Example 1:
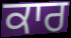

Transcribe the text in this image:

ਕਾਰ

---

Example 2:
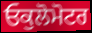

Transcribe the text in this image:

ਓਕੁਲੋਮੋਟਰ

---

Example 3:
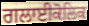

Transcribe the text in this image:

ਗਲਾਈਕੋਲਿਕ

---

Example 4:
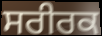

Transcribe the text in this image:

ਸਰੀਰਕ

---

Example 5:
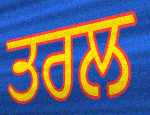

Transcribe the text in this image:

ਤਰਲ